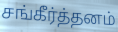
சங்கீர்த்தனம்